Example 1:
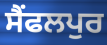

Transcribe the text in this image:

ਸੈਂਫਲਪੁਰ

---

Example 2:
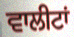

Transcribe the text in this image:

ਵਾਲੀਟਾਂ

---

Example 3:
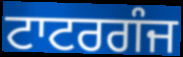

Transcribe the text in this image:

ਟਾਟਰਗੰਜ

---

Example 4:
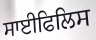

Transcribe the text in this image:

ਸਾਈਫਿਲਿਸ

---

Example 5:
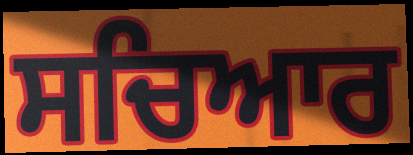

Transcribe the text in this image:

ਸਚਿਆਰ